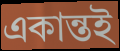
একান্তই